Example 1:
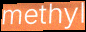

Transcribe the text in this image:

methyl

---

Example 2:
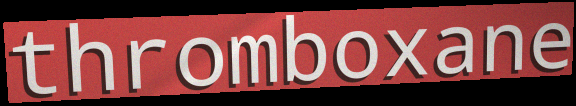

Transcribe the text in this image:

thromboxane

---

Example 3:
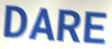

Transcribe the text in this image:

DARE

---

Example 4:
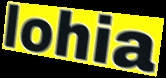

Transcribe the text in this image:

lohia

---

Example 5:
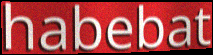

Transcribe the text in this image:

habebat